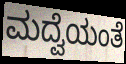
ಮದ್ವೆಯಂತೆ